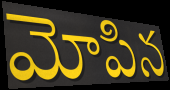
మోపిన